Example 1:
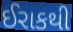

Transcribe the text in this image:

ઈરાકથી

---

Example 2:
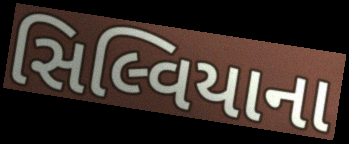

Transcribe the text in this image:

સિલ્વિયાના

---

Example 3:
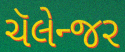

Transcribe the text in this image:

ચૅલેન્જર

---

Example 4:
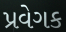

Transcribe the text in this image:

પ્રવેગક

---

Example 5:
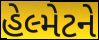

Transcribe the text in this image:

હેલ્મેટને